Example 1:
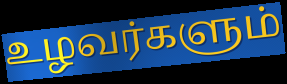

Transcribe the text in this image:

உழவர்களும்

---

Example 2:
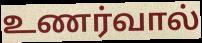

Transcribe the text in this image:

உணர்வால்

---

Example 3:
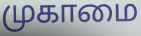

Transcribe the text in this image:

முகாமை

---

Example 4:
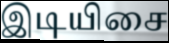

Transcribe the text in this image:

இடியிசை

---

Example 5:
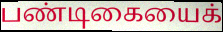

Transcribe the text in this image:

பண்டிகையைக்